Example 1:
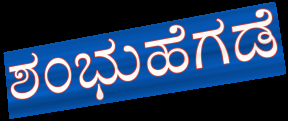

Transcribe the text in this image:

ಶಂಭುಹೆಗಡೆ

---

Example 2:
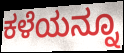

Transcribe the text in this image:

ಕಳೆಯನ್ನೂ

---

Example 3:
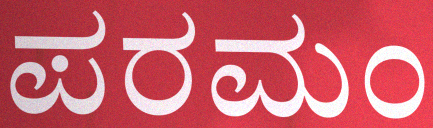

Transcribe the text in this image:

ಪರಮಂ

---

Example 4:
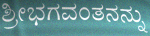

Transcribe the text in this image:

ಶ್ರೀಭಗವಂತನನ್ನು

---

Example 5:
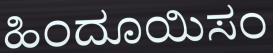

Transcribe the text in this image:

ಹಿಂದೂಯಿಸಂ